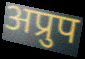
अप्रुप